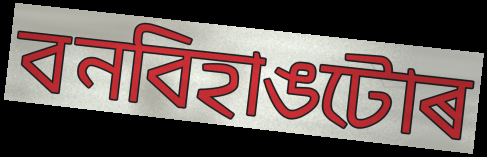
বনবিহাঙটোৰ